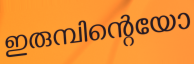
ഇരുമ്പിന്റെയോ